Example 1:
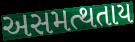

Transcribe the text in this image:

અસમત્થતાય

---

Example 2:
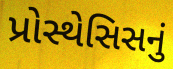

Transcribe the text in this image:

પ્રોસ્થેસિસનું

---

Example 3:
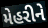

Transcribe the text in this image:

મેહરીને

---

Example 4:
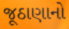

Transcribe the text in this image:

જૂઠાણાનો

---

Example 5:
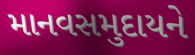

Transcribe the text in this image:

માનવસમુદાયને